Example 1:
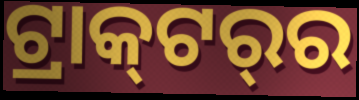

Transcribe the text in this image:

ଟ୍ରାକ୍‍ଟର୍‍ର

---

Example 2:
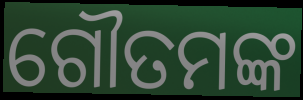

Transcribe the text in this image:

ଗୌତମଙ୍କ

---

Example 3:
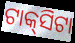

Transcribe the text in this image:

ଟାକ୍‌ସିଟା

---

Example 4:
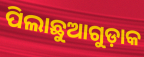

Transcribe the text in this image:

ପିଲାଛୁଆଗୁଡ଼ାକ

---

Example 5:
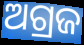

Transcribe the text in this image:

ଅଗ୍ରଜ